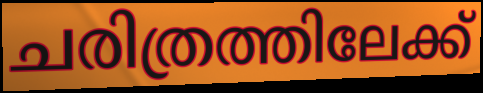
ചരിത്രത്തിലേക്ക്